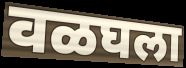
वळघला